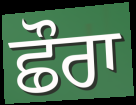
ਛੌਰਾ